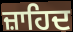
ਜ਼ਾਹਿਦ